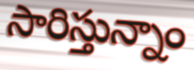
సారిస్తున్నాం